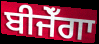
ਬੀਜੇਁਗਾ